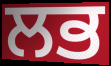
ਲਭ